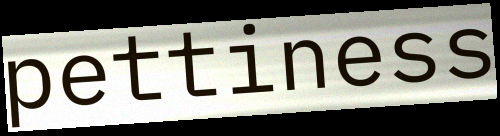
pettiness